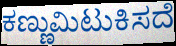
ಕಣ್ಣುಮಿಟುಕಿಸದೆ